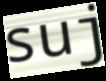
suj